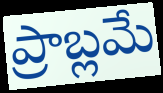
ప్రాబ్లమే